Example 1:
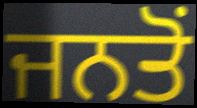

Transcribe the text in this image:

ਜਨਤੋਂ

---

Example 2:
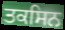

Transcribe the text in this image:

ਤਕਸਿਨ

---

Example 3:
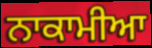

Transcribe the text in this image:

ਨਾਕਾਮੀਆ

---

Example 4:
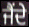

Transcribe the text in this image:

ਜੈਂਦੇ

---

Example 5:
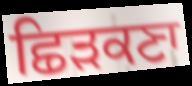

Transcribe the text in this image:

ਛਿੜਕਣਾ